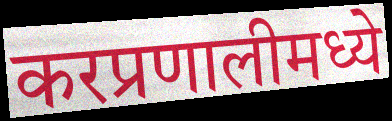
करप्रणालीमध्ये